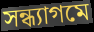
সন্ধ্যাগমে